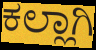
ಕಲ್ಲಾಗಿ